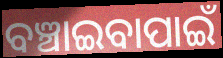
ବଞ୍ଚାଇବାପାଇଁ